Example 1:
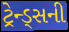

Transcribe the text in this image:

ટ્રેન્ડ્સની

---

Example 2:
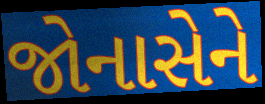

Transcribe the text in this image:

જોનાસેને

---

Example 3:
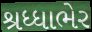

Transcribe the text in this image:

શ્રધ્ધાભેર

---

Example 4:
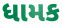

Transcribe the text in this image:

ધામક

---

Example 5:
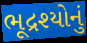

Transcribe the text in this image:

ભૂદ્રશ્યોનું